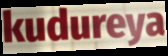
kudureya